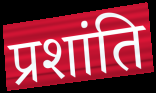
प्रशांति